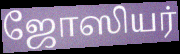
ஜோஸியர்